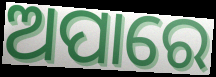
ଅପାରେ